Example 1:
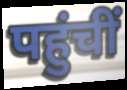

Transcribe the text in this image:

पहुंचीं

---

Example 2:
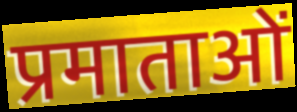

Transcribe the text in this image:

प्रमाताओं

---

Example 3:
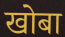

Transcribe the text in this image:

खोबा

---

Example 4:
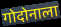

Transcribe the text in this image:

गोदोनाला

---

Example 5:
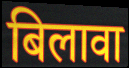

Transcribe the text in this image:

बिलावा